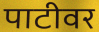
पाटीवर